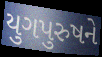
યુગપુરુષને